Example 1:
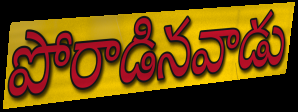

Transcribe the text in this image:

పోరాడినవాడు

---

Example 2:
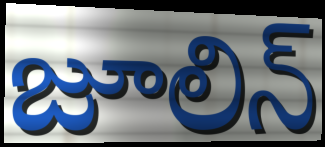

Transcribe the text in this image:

జూలిన్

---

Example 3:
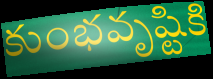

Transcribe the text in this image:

కుంభవృష్టికి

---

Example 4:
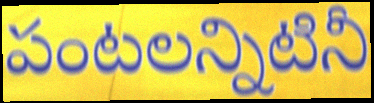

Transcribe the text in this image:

పంటలన్నిటినీ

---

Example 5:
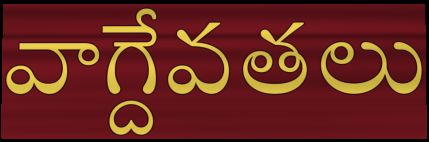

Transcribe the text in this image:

వాగ్దేవతలు